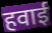
हवाई